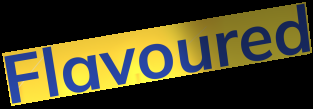
Flavoured